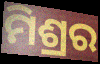
ମିଶ୍ରର